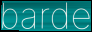
barde